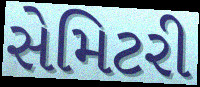
સેમિટરી